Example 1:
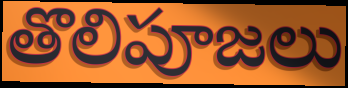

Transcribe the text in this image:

తొలిపూజలు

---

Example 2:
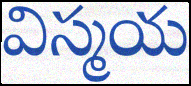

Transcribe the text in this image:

విస్మయ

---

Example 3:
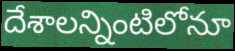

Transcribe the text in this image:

దేశాలన్నింటిలోనూ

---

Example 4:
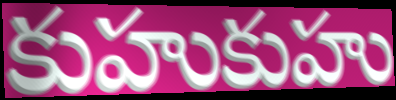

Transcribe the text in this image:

కుహుకుహు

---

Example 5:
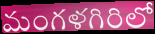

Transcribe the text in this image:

మంగళగిరిలో